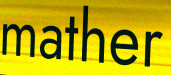
mather